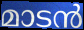
മാടൻ